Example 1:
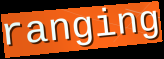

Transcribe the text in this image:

ranging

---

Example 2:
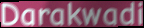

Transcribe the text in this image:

Darakwadi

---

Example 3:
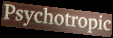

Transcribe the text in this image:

Psychotropic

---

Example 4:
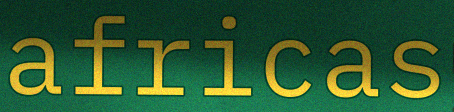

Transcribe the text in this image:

africas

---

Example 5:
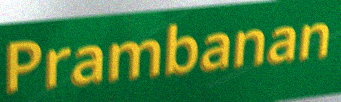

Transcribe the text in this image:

Prambanan